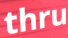
thru